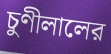
চুণীলালের